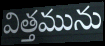
విత్తమును